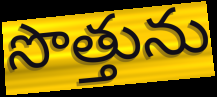
సొత్తును